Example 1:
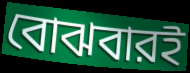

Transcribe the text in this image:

বোঝবারই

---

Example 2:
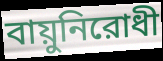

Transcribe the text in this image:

বায়ুনিরোধী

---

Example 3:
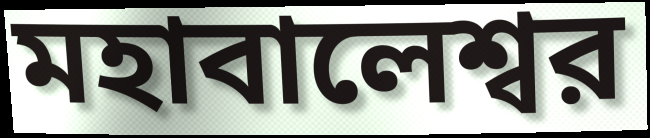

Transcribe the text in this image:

মহাবালেশ্বর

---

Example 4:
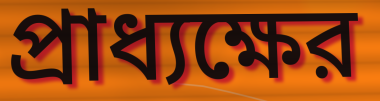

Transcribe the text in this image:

প্রাধ্যক্ষের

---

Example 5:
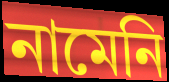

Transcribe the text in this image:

নামেনি